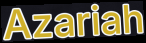
Azariah